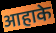
आहाके